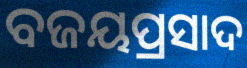
ବଜୟପ୍ରସାଦ